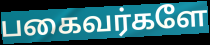
பகைவர்களே